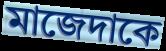
মাজেদাকে